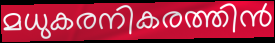
മധുകരനികരത്തിൻ